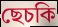
ছেচকি